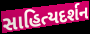
સાહિત્યદર્શન